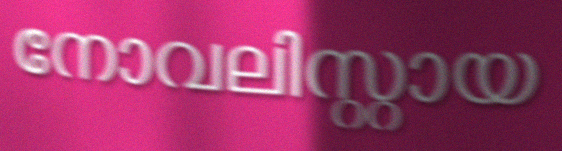
നോവലിസ്റ്റായ